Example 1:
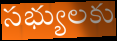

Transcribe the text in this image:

సభ్యులకు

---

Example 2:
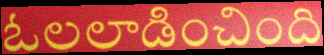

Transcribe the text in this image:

ఓలలాడించింది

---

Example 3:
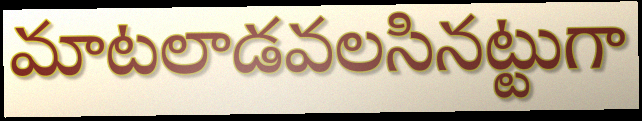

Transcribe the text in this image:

మాటలాడవలసినట్టుగా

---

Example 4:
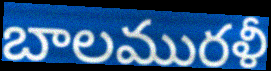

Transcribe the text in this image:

బాలమురళీ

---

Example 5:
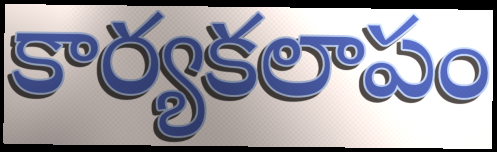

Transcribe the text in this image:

కార్యకలాపం